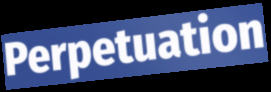
Perpetuation